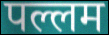
पल्लम